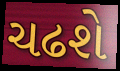
ચઢશે